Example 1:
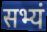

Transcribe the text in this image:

सभ्यं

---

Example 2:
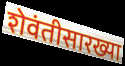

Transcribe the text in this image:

शेवंतीसारख्या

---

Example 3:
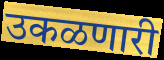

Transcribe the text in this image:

उकळणारी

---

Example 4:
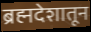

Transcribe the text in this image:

ब्रह्मदेशातून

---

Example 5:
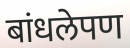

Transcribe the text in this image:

बांधलेपण